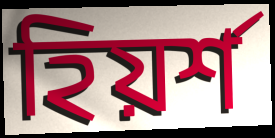
হিয়র্শ